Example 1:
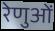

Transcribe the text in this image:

रेणुओं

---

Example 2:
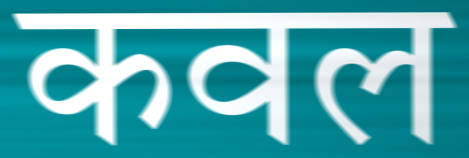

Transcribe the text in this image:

कवल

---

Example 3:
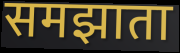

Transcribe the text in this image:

समझाता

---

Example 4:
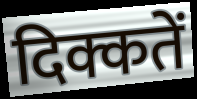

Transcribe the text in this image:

दिक्कतें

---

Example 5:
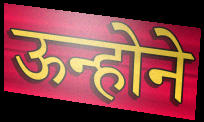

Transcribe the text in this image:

ऊन्होने